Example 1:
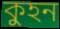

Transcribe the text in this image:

কুহন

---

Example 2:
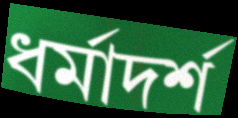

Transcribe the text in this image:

ধর্মাদর্শ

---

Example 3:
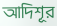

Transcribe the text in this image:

আদিশূর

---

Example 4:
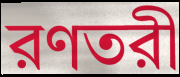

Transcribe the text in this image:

রণতরী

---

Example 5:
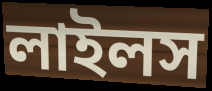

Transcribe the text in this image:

লাইলস